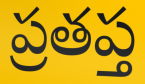
ప్రతప్త